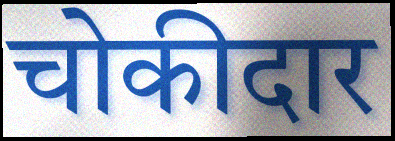
चोकीदार